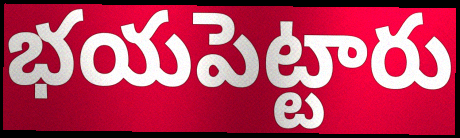
భయపెట్టారు